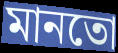
মানতো